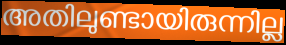
അതിലുണ്ടായിരുന്നില്ല